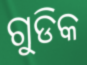
ଗୁଡିକ